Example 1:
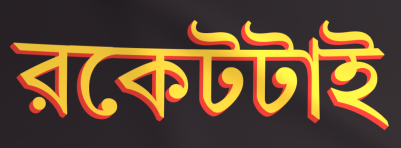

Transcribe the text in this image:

রকেটটাই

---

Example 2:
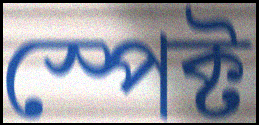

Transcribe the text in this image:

স্পেক্ট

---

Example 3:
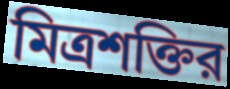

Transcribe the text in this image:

মিত্রশক্তির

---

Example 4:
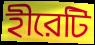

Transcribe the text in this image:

হীরেটি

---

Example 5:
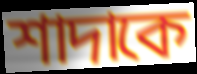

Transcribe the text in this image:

শাদাকে